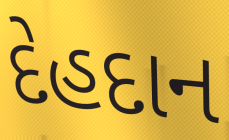
દેહદાન